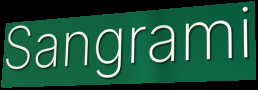
Sangrami